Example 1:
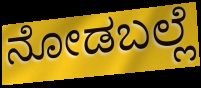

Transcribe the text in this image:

ನೋಡಬಲ್ಲೆ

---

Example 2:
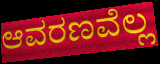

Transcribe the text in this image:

ಆವರಣವೆಲ್ಲ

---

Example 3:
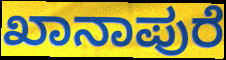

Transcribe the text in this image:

ಖಾನಾಪುರೆ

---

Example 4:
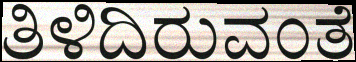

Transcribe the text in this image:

ತಿಳಿದಿರುವಂತೆ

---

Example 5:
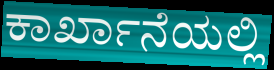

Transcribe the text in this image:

ಕಾರ್ಖಾನೆಯಲ್ಲಿ